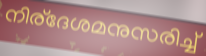
നിര്ദേശമനുസരിച്ച്